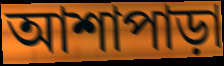
আশাপাড়া